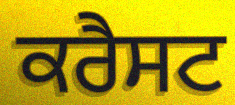
ਕਰੈਸਟ